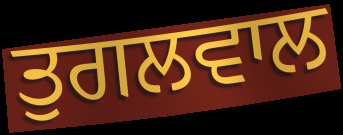
ਤੁਗਲਵਾਲ